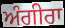
ਅੰਗੀਰਾ